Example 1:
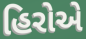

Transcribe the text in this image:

હિરોએ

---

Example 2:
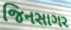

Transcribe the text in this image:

જિનસાગર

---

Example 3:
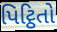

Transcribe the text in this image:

પિટ્ઠિતો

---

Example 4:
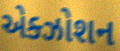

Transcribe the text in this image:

એક્ઝોશન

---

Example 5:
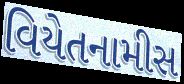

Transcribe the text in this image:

વિયેતનામીસ